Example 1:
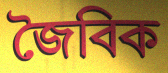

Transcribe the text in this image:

জৈবিক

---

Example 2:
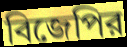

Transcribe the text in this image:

বিজেপির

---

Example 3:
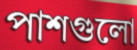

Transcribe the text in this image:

পাশগুলো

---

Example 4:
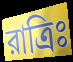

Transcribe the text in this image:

রাত্রিঃ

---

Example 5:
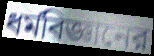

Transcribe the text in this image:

ধর্মবিজ্ঞানের